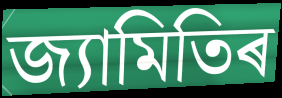
জ্যামিতিৰ